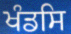
ਖੰਡਸਿ